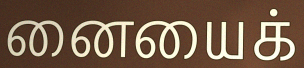
னையைக்